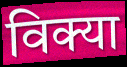
विक्या